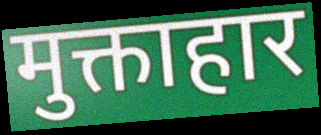
मुक्ताहार